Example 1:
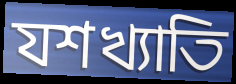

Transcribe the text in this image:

যশখ্যাতি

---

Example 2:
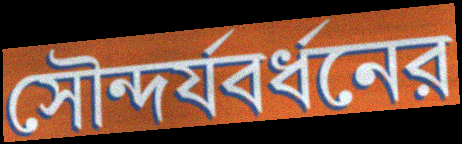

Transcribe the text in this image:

সৌন্দর্যবর্ধনের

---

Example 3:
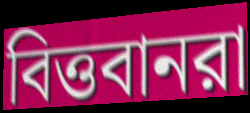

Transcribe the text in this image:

বিত্তবানরা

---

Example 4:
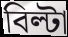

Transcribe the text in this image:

বিল্টা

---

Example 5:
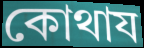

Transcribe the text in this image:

কোথায